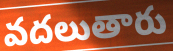
వదలుతారు